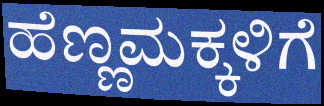
ಹೆಣ್ಣಮಕ್ಕಳಿಗೆ